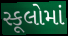
સ્કૂલોમાં